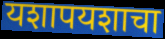
यशापयशाचा